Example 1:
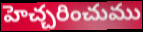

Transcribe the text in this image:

హెచ్చరించుము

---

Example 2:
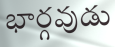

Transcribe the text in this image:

భార్గవుడు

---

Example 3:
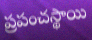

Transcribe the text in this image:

ప్రపంచస్థాయి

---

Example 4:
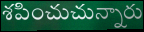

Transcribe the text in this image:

శపించుచున్నారు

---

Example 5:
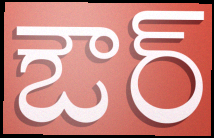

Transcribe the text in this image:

ఔర్